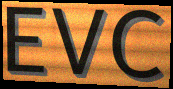
EVC